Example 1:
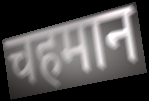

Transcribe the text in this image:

चहमान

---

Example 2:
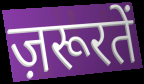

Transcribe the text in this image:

ज़रूरतें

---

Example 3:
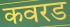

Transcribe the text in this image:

कवरड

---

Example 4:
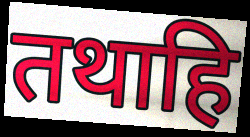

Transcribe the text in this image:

तथाहि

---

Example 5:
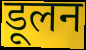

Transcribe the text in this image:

डूलन